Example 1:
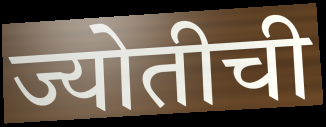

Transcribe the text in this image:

ज्योतीची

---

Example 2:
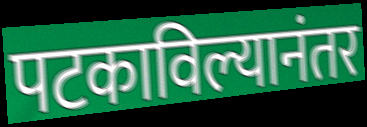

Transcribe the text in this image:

पटकाविल्यानंतर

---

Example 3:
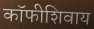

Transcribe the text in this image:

कॉफीशिवाय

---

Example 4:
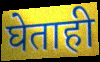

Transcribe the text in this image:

घेताही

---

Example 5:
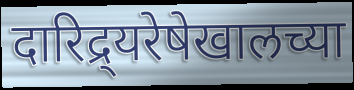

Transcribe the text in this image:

दारिद्र्यरेषेखालच्या